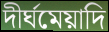
দীর্ঘমেয়াদি